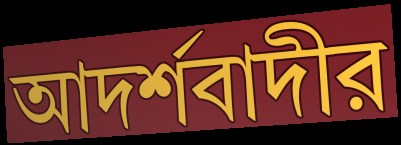
আদর্শবাদীর